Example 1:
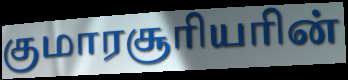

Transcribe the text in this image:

குமாரசூரியரின்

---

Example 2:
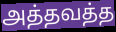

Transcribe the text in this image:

அத்தவத்த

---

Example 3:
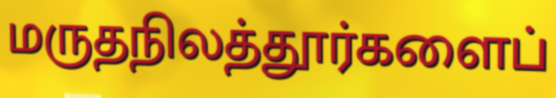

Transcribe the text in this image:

மருதநிலத்தூர்களைப்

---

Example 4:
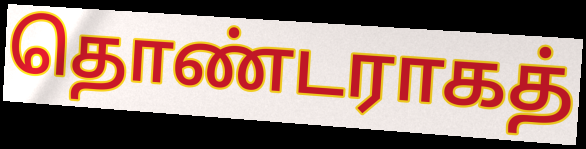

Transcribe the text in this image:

தொண்டராகத்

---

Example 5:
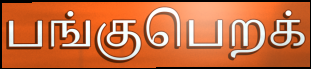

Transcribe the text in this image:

பங்குபெறக்